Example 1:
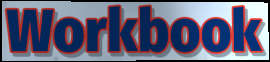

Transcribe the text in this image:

Workbook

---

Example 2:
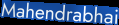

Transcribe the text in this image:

Mahendrabhai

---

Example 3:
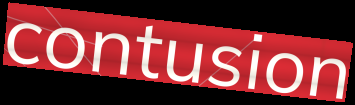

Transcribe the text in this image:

contusion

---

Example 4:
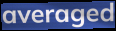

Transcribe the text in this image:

averaged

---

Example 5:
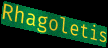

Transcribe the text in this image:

Rhagoletis